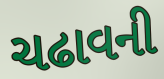
ચઢાવની